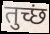
तुच्छं